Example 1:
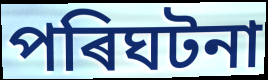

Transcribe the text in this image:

পৰিঘটনা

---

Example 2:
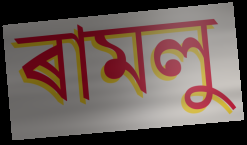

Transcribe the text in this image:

ৰামলু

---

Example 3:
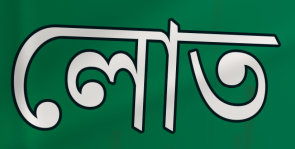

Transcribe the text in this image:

লোত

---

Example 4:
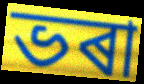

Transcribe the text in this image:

ভৰা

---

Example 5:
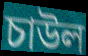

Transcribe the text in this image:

চাউল